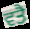
ਵਤੈ